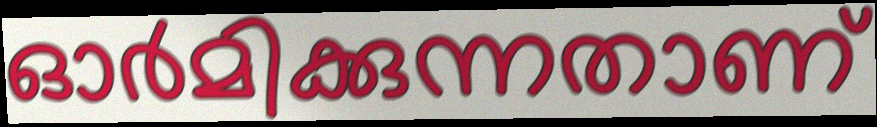
ഓർമിക്കുന്നതാണ്